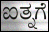
ಐತ್ನಗೆ